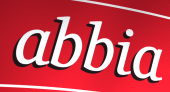
abbia